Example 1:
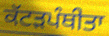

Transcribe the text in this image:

ਕੱਟੜਪੰਥੀਤਾ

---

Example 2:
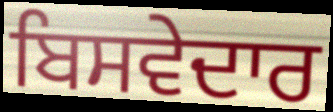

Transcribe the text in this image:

ਬਿਸਵੇਦਾਰ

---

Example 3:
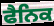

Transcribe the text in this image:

ਫੈਨਿਕ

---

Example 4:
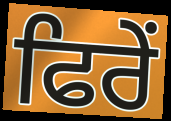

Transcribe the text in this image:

ਫਿਰੇਂ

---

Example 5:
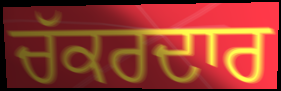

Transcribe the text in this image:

ਚੱਕਰਦਾਰ